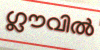
ഗ്ലൗവിൽ